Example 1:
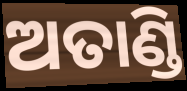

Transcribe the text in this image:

ଅତାଣ୍ଡି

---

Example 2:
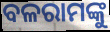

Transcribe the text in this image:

ବଳରାମଙ୍କୁ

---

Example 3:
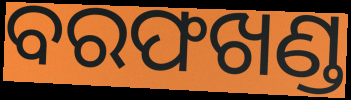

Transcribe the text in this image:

ବରଫଖଣ୍ଡ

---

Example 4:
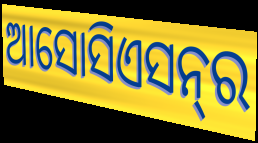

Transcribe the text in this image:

ଆସୋସିଏସନ୍‍ର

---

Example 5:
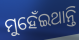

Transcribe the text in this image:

ମୁହେଁଇଥାନ୍ତି